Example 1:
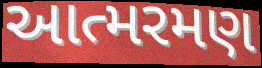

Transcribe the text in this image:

આત્મરમણ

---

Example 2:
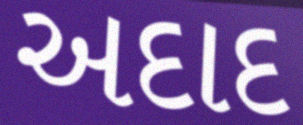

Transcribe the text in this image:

અદાદ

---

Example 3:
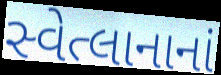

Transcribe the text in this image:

સ્વેત્લાનાનાં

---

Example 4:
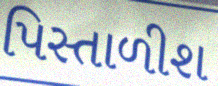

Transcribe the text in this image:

પિસ્તાળીશ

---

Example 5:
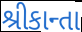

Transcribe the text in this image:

શ્રીકાન્તા